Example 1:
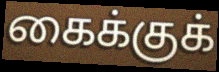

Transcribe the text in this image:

கைக்குக்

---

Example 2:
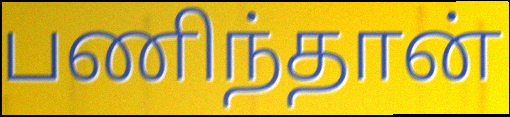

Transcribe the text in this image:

பணிந்தான்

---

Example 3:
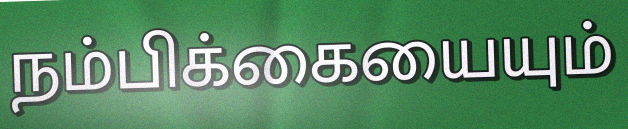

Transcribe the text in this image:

நம்பிக்கையையும்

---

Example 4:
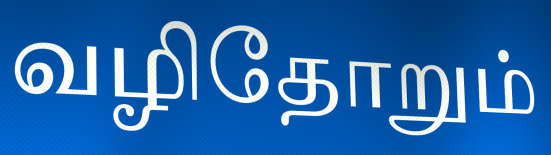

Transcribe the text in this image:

வழிதோறும்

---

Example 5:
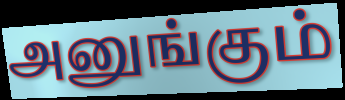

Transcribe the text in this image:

அனுங்கும்